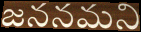
జననమని